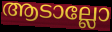
ആടാല്ലോ